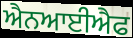
ਐਨਆਈਐਫ